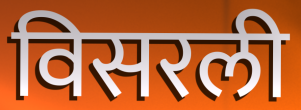
विसरली